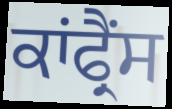
ਕਾਂਫ੍ਰੈਂਸ